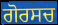
ਗੋਰਸਚ